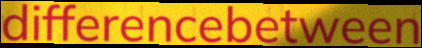
differencebetween